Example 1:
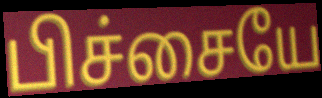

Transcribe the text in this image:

பிச்சையே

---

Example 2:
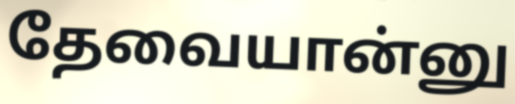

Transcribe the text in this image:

தேவையான்னு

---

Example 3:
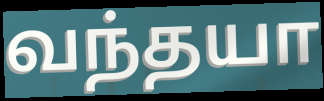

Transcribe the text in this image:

வந்தயா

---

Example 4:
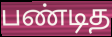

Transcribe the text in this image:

பண்டித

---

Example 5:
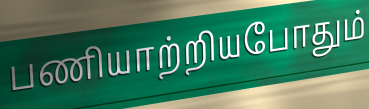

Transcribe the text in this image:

பணியாற்றியபோதும்